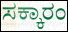
ಸಕ್ಕಾರಂ